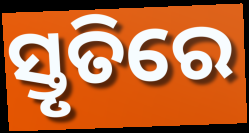
ସ୍ତୃତିରେ